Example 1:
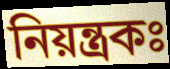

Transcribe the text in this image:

নিয়ন্ত্রকঃ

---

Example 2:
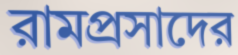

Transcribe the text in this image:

রামপ্রসাদের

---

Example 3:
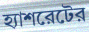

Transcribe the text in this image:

হ্যাশরেটের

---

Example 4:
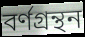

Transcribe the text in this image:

বর্ণগ্রন্থন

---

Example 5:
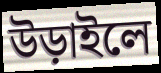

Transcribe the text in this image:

উড়াইলে